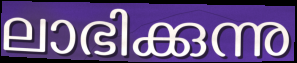
ലാഭിക്കുന്നു